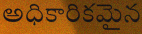
అధికారికమైన